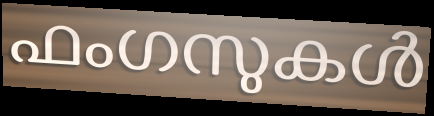
ഫംഗസുകൾ